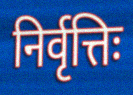
निर्वृत्तिः